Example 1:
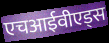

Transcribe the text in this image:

एचआईवीएड्स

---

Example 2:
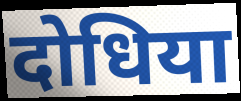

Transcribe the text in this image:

दोधिया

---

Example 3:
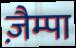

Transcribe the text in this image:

ज़ैम्पा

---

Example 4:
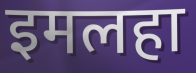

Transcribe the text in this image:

इमलहा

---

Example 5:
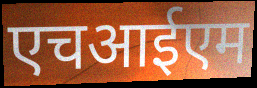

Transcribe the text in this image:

एचआईएम